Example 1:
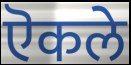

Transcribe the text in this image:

ऎकले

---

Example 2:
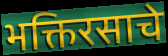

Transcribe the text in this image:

भक्तिरसाचे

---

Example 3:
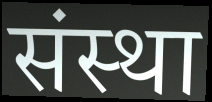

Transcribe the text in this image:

संस्था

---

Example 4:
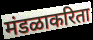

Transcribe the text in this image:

मंडळाकरिता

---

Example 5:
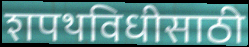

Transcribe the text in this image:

शपथविधीसाठी